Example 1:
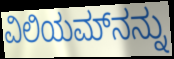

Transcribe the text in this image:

ವಿಲಿಯಮ್‌ನನ್ನು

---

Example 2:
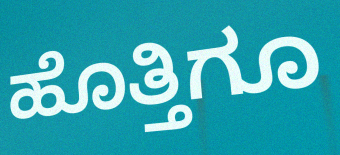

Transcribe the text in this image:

ಹೊತ್ತಿಗೂ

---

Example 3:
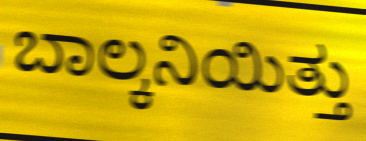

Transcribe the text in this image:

ಬಾಲ್ಕನಿಯಿತ್ತು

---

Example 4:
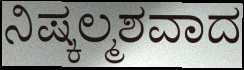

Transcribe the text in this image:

ನಿಷ್ಕಲ್ಮಶವಾದ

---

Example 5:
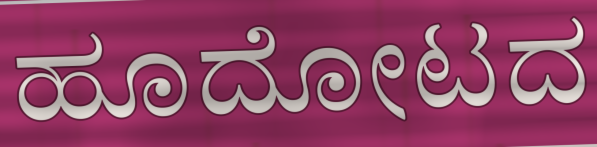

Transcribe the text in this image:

ಹೂದೋಟದ